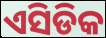
ଏସିଡିକ